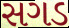
સગડ